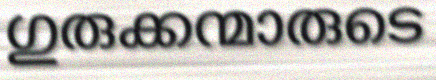
ഗുരുക്കന്മാരുടെ